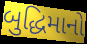
બુદ્ધિમાનો